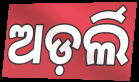
ଅଡ଼ର୍ଲି